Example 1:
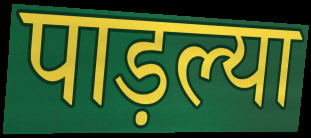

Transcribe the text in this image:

पाड़ल्या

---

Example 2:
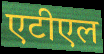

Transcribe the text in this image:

एटीएल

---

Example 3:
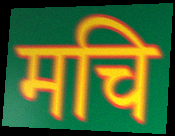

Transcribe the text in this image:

मचि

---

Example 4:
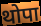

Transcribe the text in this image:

थोपा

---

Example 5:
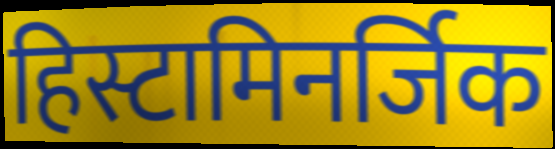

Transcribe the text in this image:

हिस्टामिनर्जिक